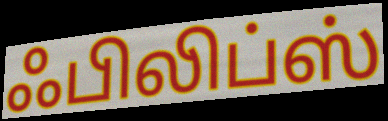
ஃபிலிப்ஸ்